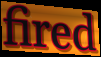
fired